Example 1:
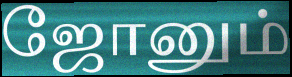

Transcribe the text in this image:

ஜோனும்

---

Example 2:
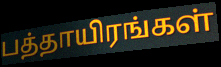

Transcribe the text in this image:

பத்தாயிரங்கள்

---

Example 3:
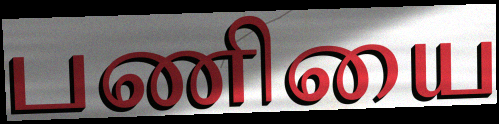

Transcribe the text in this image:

பணியை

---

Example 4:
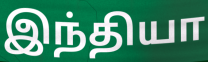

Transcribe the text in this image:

இந்தியா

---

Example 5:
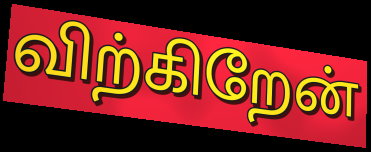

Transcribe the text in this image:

விற்கிறேன்